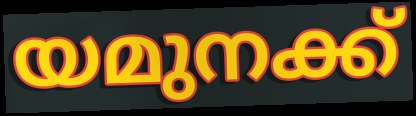
യമുനക്ക്